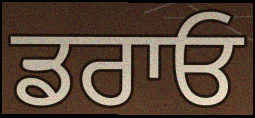
ਡਰਾਓ